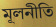
মূলনীতি